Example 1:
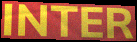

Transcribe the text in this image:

INTER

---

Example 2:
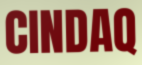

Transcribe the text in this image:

CINDAQ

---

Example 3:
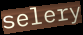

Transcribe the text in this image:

selery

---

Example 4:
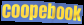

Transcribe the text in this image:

coopebook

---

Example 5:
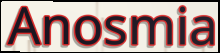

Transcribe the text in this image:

Anosmia